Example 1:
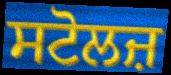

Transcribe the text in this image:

ਸਟੋਲਜ਼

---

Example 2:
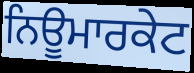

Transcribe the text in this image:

ਨਿਊਮਾਰਕੇਟ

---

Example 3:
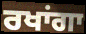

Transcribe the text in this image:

ਰਖਾਂਗਾ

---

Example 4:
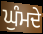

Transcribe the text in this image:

ਘੁੰਮਦੇ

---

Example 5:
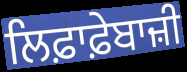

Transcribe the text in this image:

ਲਿਫ਼ਾਫ਼ੇਬਾਜ਼ੀ